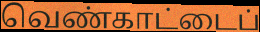
வெண்காட்டைப்